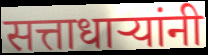
सत्ताधाऱ्यांनी